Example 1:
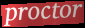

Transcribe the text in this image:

proctor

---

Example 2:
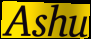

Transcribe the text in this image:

Ashu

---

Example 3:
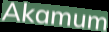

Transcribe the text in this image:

Akamum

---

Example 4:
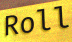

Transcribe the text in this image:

Roll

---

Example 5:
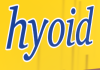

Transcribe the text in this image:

hyoid